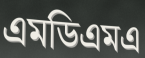
এমডিএমএ